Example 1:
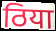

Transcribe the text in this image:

ठिया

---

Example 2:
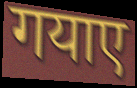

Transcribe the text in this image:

गयाए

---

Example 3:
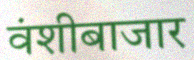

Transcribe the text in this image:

वंशीबाजार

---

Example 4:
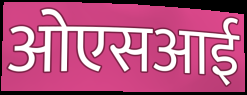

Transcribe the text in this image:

ओएसआई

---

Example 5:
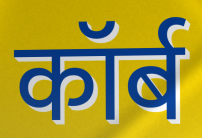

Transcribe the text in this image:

कॉर्ब